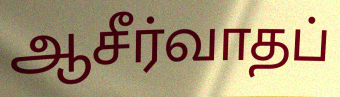
ஆசீர்வாதப்